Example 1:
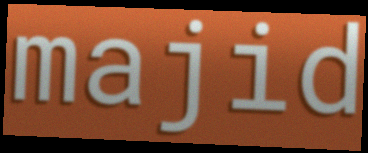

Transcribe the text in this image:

majid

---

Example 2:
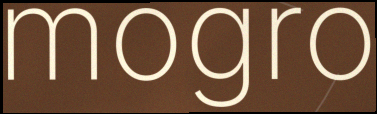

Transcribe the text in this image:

mogro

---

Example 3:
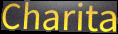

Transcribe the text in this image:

Charita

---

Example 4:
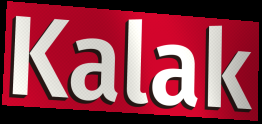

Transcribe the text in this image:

Kalak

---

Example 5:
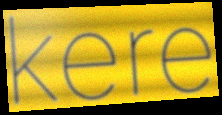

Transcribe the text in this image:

kere